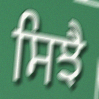
ਸਿਝੈ